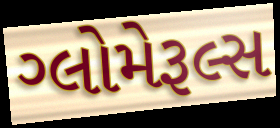
ગ્લોમેરૂલ્સ